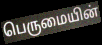
பெருமையின்